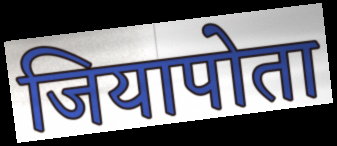
जियापोता